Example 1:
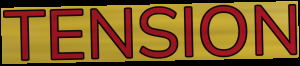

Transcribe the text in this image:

TENSION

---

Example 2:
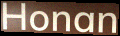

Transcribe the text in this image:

Honan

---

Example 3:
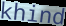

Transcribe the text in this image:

khind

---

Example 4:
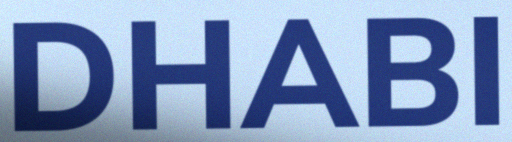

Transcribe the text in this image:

DHABI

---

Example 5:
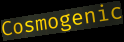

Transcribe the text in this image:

Cosmogenic